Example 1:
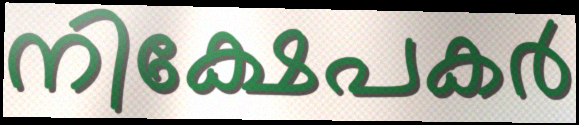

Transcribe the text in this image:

നിക്ഷേപകർ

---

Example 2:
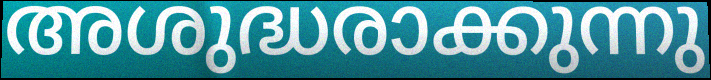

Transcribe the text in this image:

അശുദ്ധരാക്കുന്നു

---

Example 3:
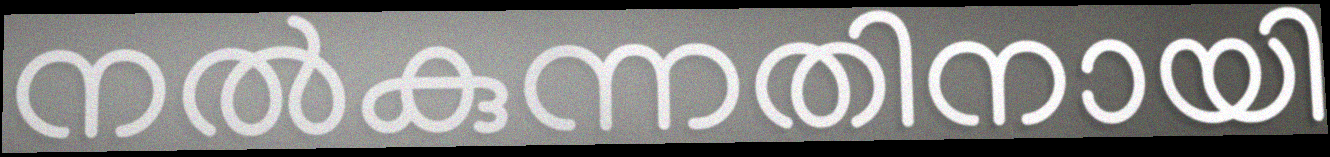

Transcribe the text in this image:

നൽകുന്നതിനായി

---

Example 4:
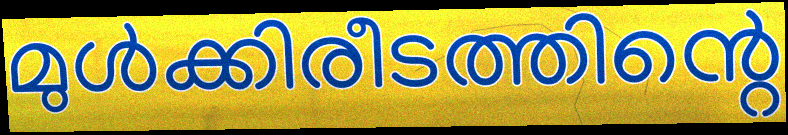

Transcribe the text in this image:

മുൾക്കിരീടത്തിന്റെ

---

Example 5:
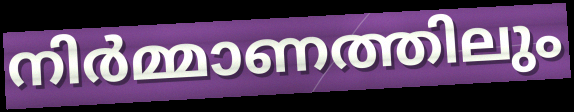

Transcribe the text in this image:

നിർമ്മാണത്തിലും